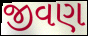
જીવણ